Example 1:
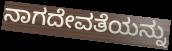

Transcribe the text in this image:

ನಾಗದೇವತೆಯನ್ನು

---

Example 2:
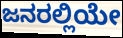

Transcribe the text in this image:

ಜನರಲ್ಲಿಯೇ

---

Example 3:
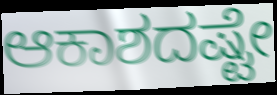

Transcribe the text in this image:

ಆಕಾಶದಷ್ಟೇ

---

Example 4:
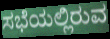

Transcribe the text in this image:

ಸಭೆಯಲ್ಲಿರುವ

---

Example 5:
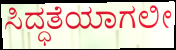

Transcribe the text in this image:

ಸಿದ್ಧತೆಯಾಗಲೀ